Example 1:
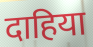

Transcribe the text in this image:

दाहिया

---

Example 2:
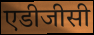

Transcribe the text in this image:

एडीजीसी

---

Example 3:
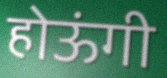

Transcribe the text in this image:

होऊंगी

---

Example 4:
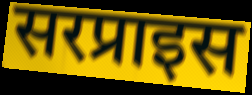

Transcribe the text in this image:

सरप्राइस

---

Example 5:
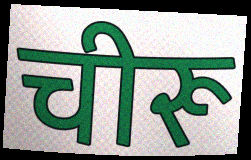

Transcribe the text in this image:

चीरू